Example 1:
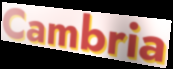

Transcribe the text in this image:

Cambria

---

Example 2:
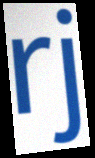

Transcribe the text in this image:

rj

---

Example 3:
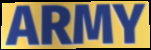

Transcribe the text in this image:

ARMY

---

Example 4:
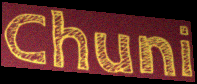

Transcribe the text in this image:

Chuni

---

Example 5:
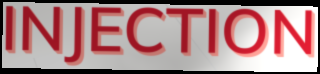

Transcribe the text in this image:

INJECTION